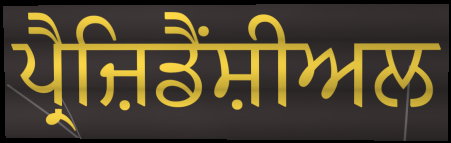
ਪ੍ਰੈਜ਼ਿਡੈਂਸ਼ੀਅਲ